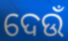
ଦେଉଁ